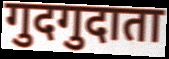
गुदगुदाता